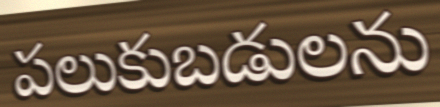
పలుకుబడులను